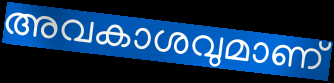
അവകാശവുമാണ്